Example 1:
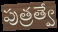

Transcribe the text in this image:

పుత్రత్వే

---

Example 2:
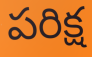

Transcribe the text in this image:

పరిక్ష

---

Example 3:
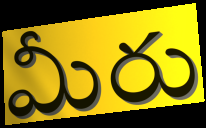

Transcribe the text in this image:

మీరు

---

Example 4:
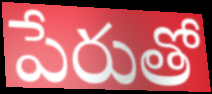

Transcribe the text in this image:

పేరుతో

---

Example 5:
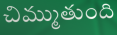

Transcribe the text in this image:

చిమ్ముతుంది